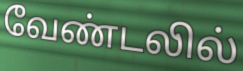
வேண்டலில்